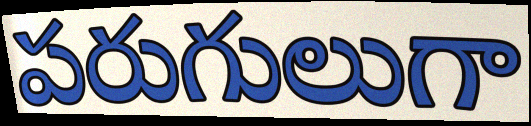
పరుగులుగా